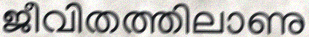
ജീവിതത്തിലാണു